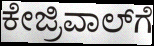
ಕೇಜ್ರಿವಾಲ್‍ಗೆ